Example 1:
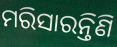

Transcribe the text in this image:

ମରିସାରନ୍ତିଣି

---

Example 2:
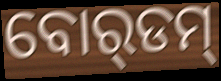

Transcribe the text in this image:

ବୋର୍‌ଡମ୍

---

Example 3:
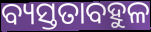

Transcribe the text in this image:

ବ୍ୟସ୍ତତାବହୁଳ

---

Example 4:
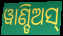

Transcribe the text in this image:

ୱାଣ୍ଡିଅସ୍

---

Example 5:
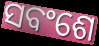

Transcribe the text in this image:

ସବଂଶେ